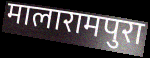
मालारामपुरा